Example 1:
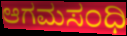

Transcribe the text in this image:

ಆಗಮಸಂಧಿ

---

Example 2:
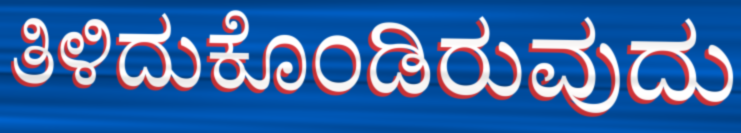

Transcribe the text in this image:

ತಿಳಿದುಕೊಂಡಿರುವುದು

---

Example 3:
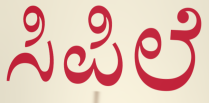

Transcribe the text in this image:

ಸಿಪಿಲೆ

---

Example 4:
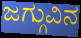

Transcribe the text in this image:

ಜಗ್ಗುವಿನ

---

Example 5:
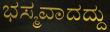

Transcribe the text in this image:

ಭಸ್ಮವಾದದ್ದು